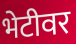
भेटीवर